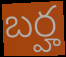
బర్హ